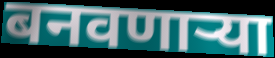
बनवणार्‍या